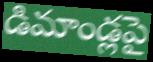
డిమాండ్లపై